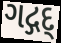
ગદ્ગદ્